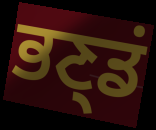
ਭਣ੍ਡਂ